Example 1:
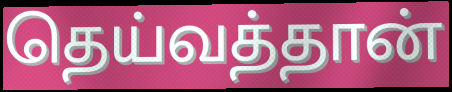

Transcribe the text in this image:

தெய்வத்தான்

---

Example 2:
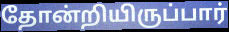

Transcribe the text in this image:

தோன்றியிருப்பார்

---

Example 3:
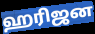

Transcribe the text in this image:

ஹரிஜன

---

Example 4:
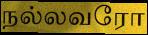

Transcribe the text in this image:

நல்லவரோ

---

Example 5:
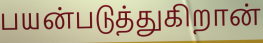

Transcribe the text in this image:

பயன்படுத்துகிறான்